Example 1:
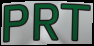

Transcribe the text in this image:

PRT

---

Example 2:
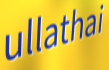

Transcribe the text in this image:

ullathai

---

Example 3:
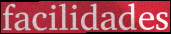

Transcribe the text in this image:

facilidades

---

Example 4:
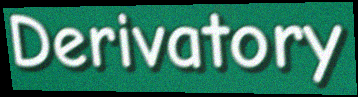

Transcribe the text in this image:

Derivatory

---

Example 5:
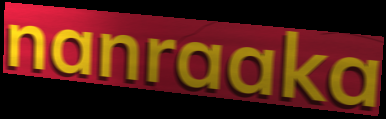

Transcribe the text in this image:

nanraaka